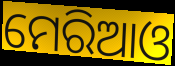
ମେରିଆଓ